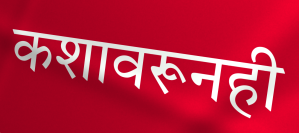
कशावरूनही